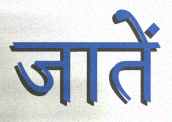
जातें